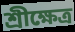
শ্রীক্ষেত্র